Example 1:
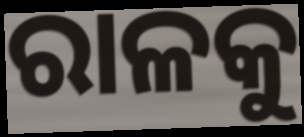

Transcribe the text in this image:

ରାଳକୁ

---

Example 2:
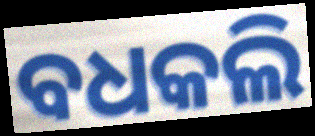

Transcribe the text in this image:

ବଧକଲି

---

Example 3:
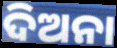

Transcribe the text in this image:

ଦିଅନା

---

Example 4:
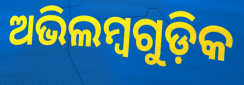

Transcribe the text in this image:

ଅଭିଲମ୍ବଗୁଡ଼ିକ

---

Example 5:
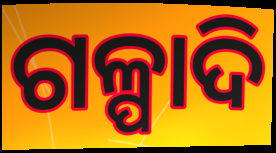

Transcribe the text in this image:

ଗଳ୍ପାଦି